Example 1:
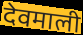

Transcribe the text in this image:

देवमाली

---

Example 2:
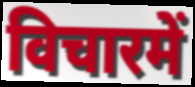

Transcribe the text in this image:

विचारमें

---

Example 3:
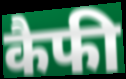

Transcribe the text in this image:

कैफी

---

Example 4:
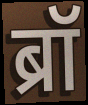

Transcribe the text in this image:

ब्रॉ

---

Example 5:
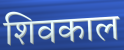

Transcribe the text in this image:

शिवकाल